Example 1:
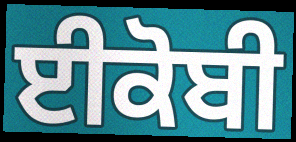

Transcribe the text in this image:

ਈਕੋਬੀ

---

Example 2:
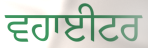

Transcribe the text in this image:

ਵਹਾਈਟਰ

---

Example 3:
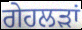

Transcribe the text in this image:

ਗੇਹਲੜਾਂ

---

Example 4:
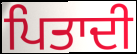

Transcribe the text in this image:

ਪਿਤਾਦੀ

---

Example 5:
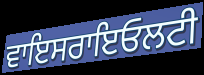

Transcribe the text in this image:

ਵਾਇਸਰਾਇਓਲਟੀ